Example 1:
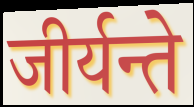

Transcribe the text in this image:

जीर्यन्ते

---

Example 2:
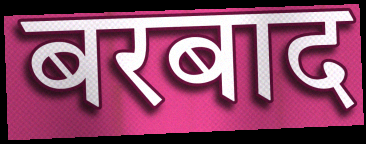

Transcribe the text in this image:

बरबाद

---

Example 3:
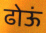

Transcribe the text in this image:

ढोऊं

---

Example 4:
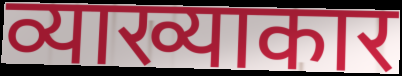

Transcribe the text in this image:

व्याख्याकार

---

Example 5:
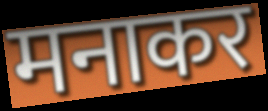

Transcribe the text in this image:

मनाकर